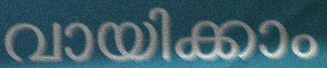
വായിക്കാം